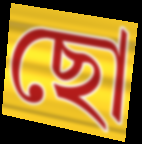
ছো